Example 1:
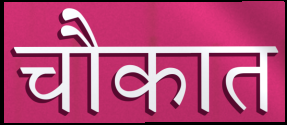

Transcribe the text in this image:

चौकात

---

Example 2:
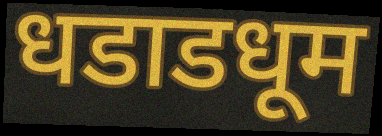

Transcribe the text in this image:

धडाडधूम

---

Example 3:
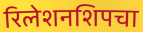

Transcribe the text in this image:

रिलेशनशिपचा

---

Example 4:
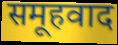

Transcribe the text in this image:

समूहवाद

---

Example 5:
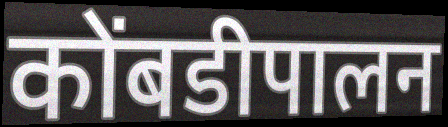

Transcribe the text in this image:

कोंबडीपालन